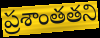
ప్రశాంతతని